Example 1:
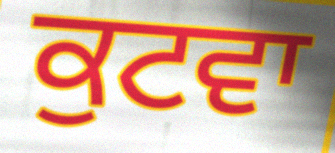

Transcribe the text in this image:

ਕੁਟਵਾ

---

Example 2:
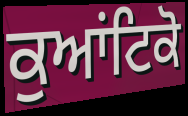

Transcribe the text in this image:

ਕੁਆਂਟਿਕੋ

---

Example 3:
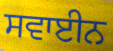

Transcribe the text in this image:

ਸਵਾਈਨ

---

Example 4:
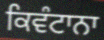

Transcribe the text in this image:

ਕਿਵੰਟਾਨਾ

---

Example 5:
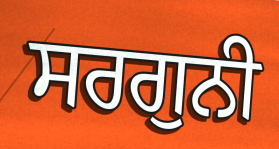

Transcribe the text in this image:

ਸਰਗੁਨੀ